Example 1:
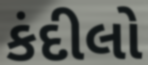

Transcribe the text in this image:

કંદીલો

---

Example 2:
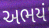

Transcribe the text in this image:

અભયં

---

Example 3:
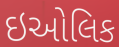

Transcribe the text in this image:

ઇઓલિક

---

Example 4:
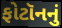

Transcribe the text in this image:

ફોટૉનનું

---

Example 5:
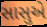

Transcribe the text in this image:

સાસુએ